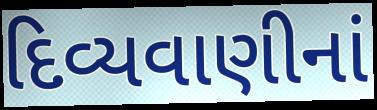
દિવ્યવાણીનાં